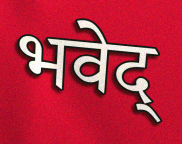
भवेद्